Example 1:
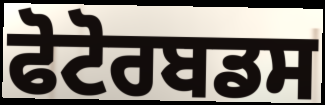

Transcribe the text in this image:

ਫੋਟੋਰਬਡਸ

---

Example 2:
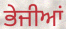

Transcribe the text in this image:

ਭੇਜੀਆਂ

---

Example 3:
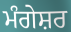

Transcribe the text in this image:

ਮੰਗੇਸ਼ਰ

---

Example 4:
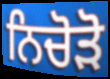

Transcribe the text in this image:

ਨਿਚੋੜੋ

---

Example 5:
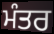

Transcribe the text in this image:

ਮੰਤਰ